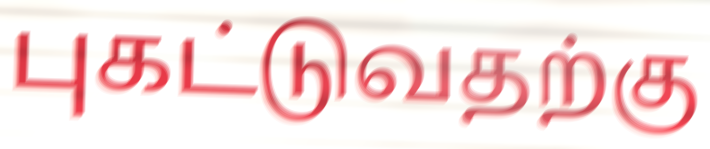
புகட்டுவதற்கு